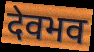
देवभव